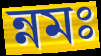
ন্নমঃ